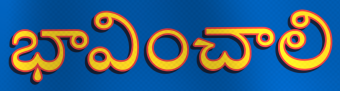
భావించాలి